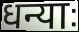
धन्याः